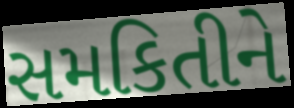
સમકિતીને